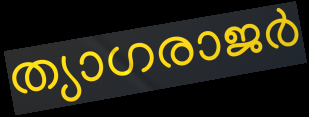
ത്യാഗരാജർ